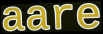
aare